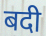
बदी